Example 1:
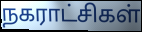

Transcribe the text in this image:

நகராட்சிகள்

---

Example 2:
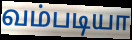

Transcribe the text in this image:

வம்படியா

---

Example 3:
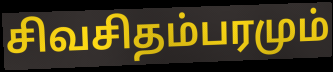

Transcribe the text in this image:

சிவசிதம்பரமும்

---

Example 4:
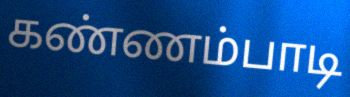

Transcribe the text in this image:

கண்ணம்பாடி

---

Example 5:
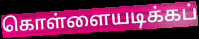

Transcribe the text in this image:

கொள்ளையடிக்கப்